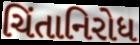
ચિંતાનિરોધ